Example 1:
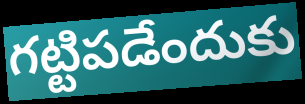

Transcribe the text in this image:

గట్టిపడేందుకు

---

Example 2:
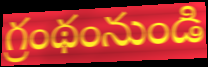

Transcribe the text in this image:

గ్రంథంనుండి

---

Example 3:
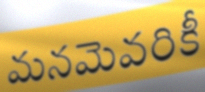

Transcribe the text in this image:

మనమెవరికీ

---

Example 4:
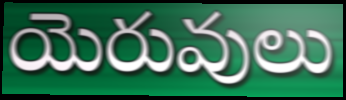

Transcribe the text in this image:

యెరువులు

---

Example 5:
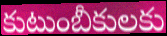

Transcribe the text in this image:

కుటుంబీకులకు